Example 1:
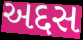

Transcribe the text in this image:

અદ્દસ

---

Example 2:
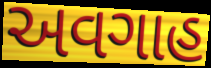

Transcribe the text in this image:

અવગાહ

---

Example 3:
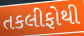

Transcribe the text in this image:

તકલીફોથી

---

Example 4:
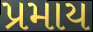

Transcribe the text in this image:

પ્રમાય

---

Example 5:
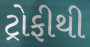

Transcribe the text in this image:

ટ્રોફીથી